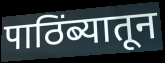
पाठिंब्यातून